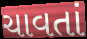
ચાવતાં